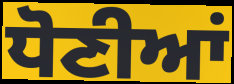
ਧੋਣੀਆਂ